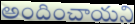
అందించాయని